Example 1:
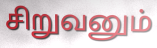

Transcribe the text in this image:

சிறுவனும்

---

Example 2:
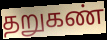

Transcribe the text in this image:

தறுகண்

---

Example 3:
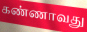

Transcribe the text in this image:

கண்ணாவது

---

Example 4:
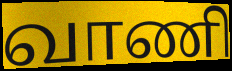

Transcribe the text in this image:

வாணி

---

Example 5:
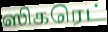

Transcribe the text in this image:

ஸிகரெட்